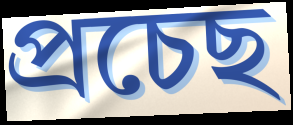
প্ৰচেছ